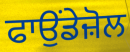
ਫਾਉਂਡੇਜ਼ੋਲ